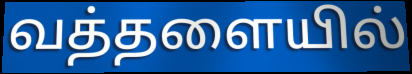
வத்தளையில்